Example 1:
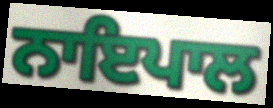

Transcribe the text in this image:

ਨਾਇਪਾਲ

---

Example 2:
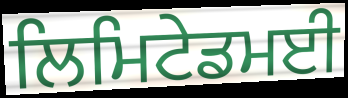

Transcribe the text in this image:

ਲਿਮਿਟੇਡਮਈ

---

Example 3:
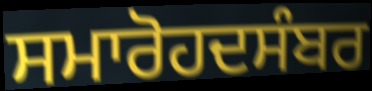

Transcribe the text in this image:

ਸਮਾਰੋਹਦਸੰਬਰ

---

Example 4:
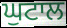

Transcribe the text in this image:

ਘੁਟਾਲ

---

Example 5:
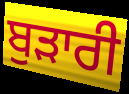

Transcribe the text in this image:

ਬੁੜਾਰੀ